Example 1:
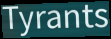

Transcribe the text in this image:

Tyrants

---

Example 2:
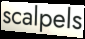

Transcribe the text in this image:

scalpels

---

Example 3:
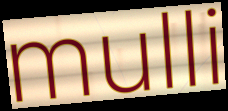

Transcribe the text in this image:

mulli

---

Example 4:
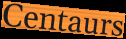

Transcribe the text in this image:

Centaurs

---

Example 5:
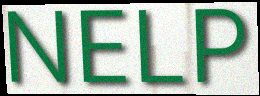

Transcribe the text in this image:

NELP